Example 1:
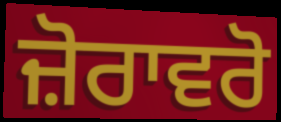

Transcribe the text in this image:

ਜ਼ੋਰਾਵਰੋ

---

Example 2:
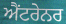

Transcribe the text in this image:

ਐਂਟਰੇਨਰ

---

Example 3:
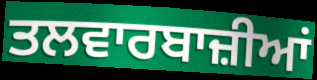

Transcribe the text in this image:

ਤਲਵਾਰਬਾਜ਼ੀਆਂ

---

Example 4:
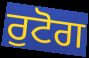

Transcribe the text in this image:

ਰੁਟੋਗ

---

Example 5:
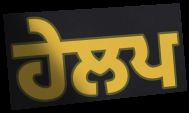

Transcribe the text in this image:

ਹੇਲਪ